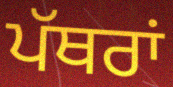
ਪੱਥਰਾਂ